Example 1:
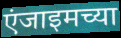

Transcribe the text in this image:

एंजाइमच्या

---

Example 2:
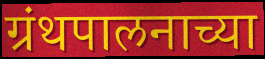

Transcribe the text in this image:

ग्रंथपालनाच्या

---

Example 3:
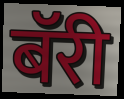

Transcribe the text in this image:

बॅरी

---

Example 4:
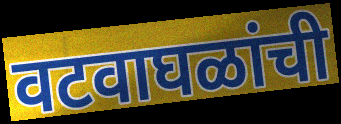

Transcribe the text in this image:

वटवाघळांची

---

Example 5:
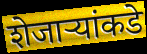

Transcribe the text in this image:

शेजाऱ्यांकडे